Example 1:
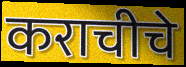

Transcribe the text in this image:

कराचीचे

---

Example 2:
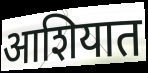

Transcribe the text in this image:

आशियात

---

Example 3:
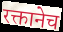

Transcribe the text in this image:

रक्तानेच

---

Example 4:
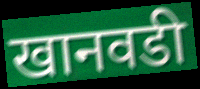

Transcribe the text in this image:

खानवडी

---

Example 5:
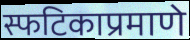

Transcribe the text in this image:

स्फटिकाप्रमाणे